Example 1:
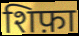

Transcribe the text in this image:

शिफ़ा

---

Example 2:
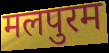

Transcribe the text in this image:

मलपुरम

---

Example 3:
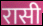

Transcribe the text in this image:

रासी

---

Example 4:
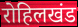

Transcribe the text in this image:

रोहिलखंड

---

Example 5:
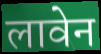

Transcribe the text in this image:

लावेन